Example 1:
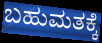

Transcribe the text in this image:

ಬಹುಮತಕ್ಕೆ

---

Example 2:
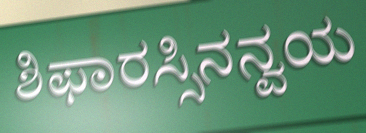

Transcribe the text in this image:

ಶಿಫಾರಸ್ಸಿನನ್ವಯ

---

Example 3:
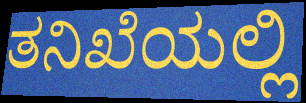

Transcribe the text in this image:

ತನಿಖೆಯಲ್ಲಿ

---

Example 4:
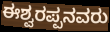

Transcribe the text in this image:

ಈಶ್ವರಪ್ಪನವರು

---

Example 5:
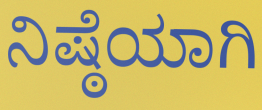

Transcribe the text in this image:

ನಿಷ್ಠೆಯಾಗಿ